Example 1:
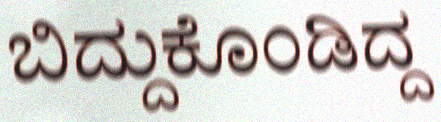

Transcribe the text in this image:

ಬಿದ್ದುಕೊಂಡಿದ್ದ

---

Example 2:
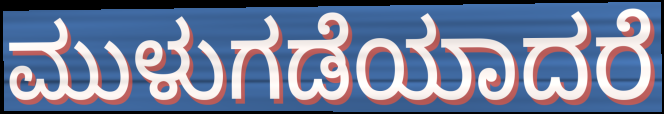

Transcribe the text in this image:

ಮುಳುಗಡೆಯಾದರೆ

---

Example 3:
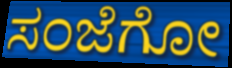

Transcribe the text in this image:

ಸಂಜೆಗೋ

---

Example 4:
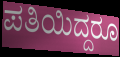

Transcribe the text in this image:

ಪತಿಯಿದ್ದರೂ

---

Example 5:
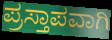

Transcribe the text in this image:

ಪ್ರಸ್ತಾಪವಾಗಿ